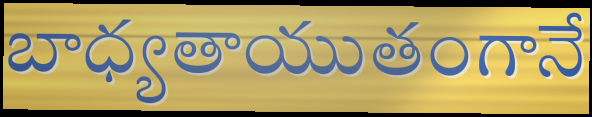
బాధ్యతాయుతంగానే